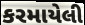
કરમાયેલી